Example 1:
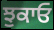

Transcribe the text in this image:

ਝੁਕਾਓ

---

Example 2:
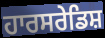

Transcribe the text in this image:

ਹਾਰਸਰੇਡਿਸ਼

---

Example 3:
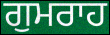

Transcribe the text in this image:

ਗੁਮਰਾਹ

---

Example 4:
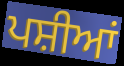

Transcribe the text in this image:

ਪਸ਼ੀਆਂ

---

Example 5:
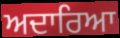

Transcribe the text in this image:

ਅਦਾਰਿਆ